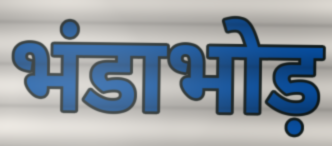
भंडाभोड़